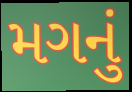
મગનું